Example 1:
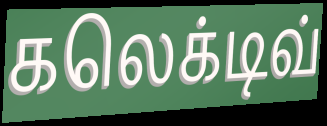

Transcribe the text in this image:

கலெக்டிவ்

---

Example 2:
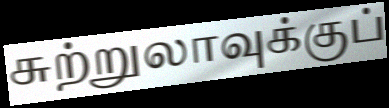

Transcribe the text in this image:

சுற்றுலாவுக்குப்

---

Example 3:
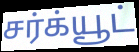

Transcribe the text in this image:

சர்க்யூட்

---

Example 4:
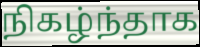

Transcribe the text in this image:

நிகழ்ந்தாக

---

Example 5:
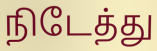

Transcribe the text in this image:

நிடேத்து